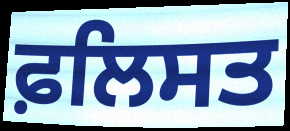
ਫ਼ਲਿਸਤ